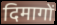
दिमागों